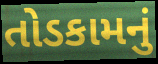
તોડકામનું